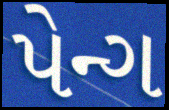
પેન્ગ